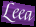
Leea